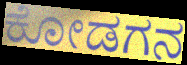
ಕೋಡಗನ